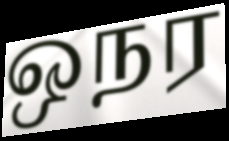
ஒநர